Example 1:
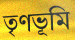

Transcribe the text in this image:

তৃণভূমি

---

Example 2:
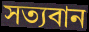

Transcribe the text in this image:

সত্যবান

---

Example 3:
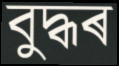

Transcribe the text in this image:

বুদ্ধৰ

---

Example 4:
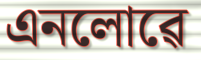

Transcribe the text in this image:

এনলোৱে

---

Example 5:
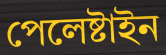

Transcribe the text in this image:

পেলেষ্টাইন